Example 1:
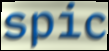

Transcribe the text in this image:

spic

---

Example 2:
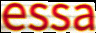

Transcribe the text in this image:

essa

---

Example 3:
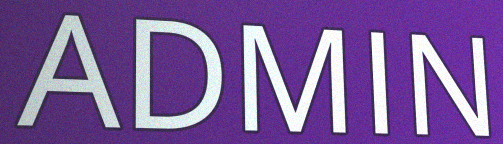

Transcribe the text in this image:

ADMIN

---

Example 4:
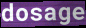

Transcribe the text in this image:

dosage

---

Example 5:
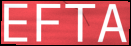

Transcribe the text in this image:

EFTA